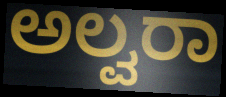
ಅಲ್ವರಾ